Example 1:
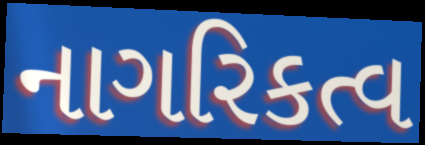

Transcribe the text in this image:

નાગરિકત્વ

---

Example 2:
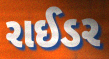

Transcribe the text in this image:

રાઈડર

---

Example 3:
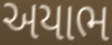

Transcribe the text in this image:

અયાભ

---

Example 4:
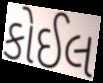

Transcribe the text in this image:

કોઈલ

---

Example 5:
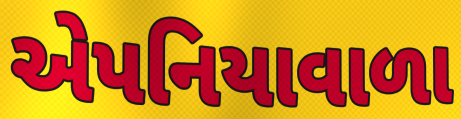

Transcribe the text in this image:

એપનિયાવાળા